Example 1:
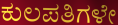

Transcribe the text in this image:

ಕುಲಪತಿಗಳೇ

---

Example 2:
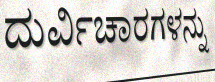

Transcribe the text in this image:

ದುರ್ವಿಚಾರಗಳನ್ನು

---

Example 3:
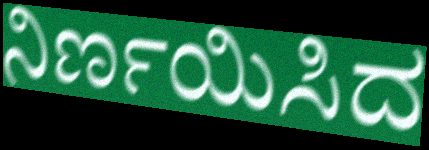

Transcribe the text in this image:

ನಿರ್ಣಯಿಸಿದ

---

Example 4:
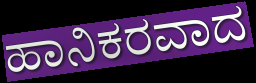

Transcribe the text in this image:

ಹಾನಿಕರವಾದ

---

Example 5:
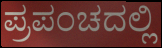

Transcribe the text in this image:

ಪ್ರಪಂಚದಲ್ಲಿ